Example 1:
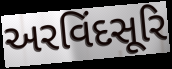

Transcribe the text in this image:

અરવિંદસૂરિ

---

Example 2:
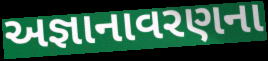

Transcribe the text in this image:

અજ્ઞાનાવરણના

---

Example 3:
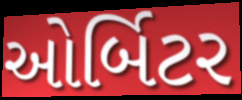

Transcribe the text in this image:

ઓર્બિટર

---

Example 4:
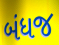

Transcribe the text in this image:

બંધજ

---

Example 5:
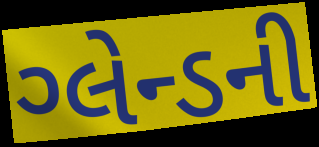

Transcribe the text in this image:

ગ્લેન્ડની